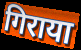
गिराया